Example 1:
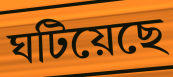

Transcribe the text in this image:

ঘটিয়েছে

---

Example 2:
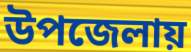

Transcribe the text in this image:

উপজেলায়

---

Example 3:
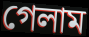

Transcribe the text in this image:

গেলাম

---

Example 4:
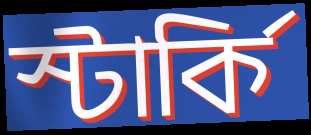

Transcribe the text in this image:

স্টার্কি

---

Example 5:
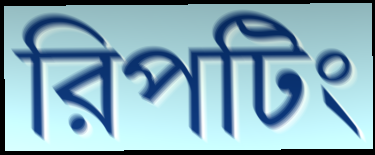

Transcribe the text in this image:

রিপটিং